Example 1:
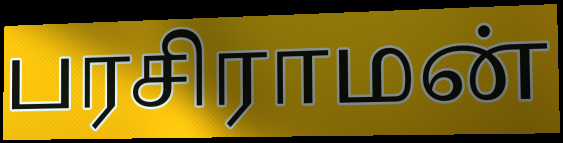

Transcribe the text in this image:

பரசிராமன்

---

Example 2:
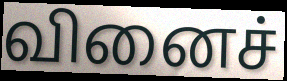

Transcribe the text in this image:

வினைச்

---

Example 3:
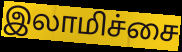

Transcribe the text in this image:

இலாமிச்சை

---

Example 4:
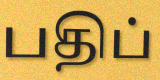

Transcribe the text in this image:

பதிப்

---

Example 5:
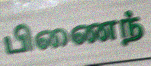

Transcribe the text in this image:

பிணைந்